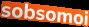
sobsomoi